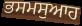
ਭਸਮਸੁਆਹ